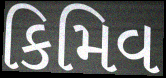
કિમિવ